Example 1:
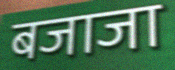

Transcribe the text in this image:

बजाजा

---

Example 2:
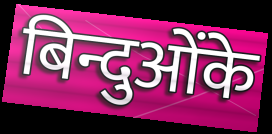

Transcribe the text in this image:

बिन्दुओंके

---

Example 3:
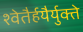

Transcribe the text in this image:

श्वेतैर्हयैर्युक्ते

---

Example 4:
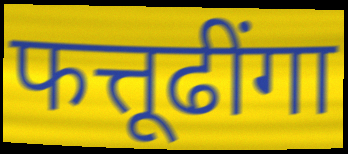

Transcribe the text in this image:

फत्तूढींगा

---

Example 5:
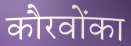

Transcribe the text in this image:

कौरवोंका